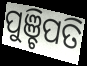
ପୁଞ୍ଚିପତି